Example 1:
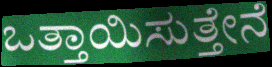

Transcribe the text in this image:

ಒತ್ತಾಯಿಸುತ್ತೇನೆ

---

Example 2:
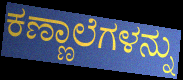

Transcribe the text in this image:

ಕಣ್ಣಾಲೆಗಳನ್ನು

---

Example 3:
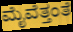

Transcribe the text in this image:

ಮೈವೆತ್ತಂತೆ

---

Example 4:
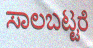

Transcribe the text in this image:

ಸಾಲಬಟ್ಟರೆ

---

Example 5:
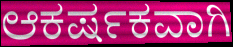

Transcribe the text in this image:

ಆಕರ್ಷಕವಾಗಿ